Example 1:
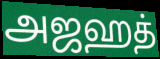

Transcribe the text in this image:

அஜஹத்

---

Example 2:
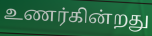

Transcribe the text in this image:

உணர்கின்றது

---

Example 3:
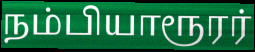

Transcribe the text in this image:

நம்பியாரூரர்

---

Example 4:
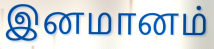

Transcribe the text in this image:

இனமானம்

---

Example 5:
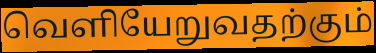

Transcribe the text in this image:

வெளியேறுவதற்கும்